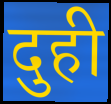
दुही